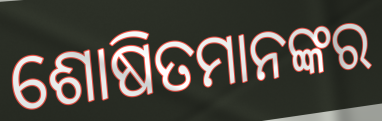
ଶୋଷିତମାନଙ୍କର